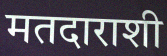
मतदाराशी